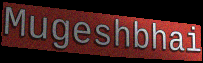
Mugeshbhai